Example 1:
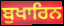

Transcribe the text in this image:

ਬੁਖਾਰਿਨ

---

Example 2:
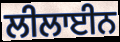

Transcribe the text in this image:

ਲੀਲਾਈਨ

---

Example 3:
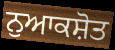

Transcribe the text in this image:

ਨੁਆਕਸ਼ੋਤ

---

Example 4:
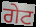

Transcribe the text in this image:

ਗੇਟ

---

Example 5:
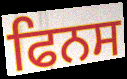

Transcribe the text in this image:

ਫਿਨਸ